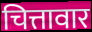
चित्तावार